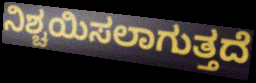
ನಿಶ್ಚಯಿಸಲಾಗುತ್ತದೆ